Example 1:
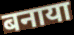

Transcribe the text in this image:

बनाया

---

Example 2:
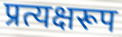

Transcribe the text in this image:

प्रत्यक्षरूप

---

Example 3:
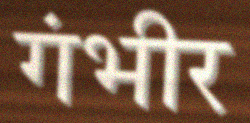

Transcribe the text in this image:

गंभीर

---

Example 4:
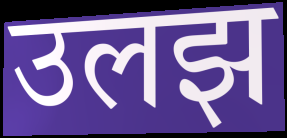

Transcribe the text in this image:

उलझ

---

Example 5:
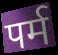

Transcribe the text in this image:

पर्म